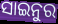
ସାଇନୁର